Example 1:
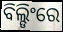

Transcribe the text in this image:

ବିଲ୍ଡିଂରେ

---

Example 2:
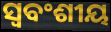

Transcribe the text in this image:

ସ୍ଵବଂଶୀୟ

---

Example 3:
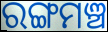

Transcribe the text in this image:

ରଙ୍ଗମଞ୍ଚ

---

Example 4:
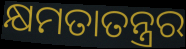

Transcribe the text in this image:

କ୍ଷମତାତନ୍ତ୍ରର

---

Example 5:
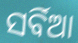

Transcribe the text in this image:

ସର୍ବିଆ